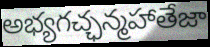
అభ్యగచ్ఛన్మహాతేజా